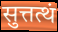
सुत्तत्थं